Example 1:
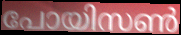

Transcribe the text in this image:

പോയിസൺ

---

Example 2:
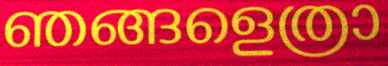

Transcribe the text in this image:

ഞങ്ങളെത്രാ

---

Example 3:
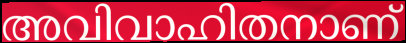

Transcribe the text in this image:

അവിവാഹിതനാണ്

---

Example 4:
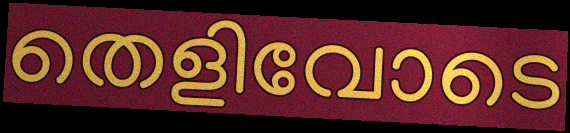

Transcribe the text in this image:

തെളിവോടെ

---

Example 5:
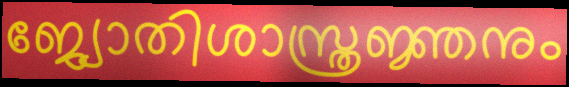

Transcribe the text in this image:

ജ്യോതിശാസ്ത്രജ്ഞനും